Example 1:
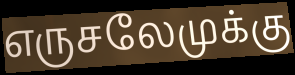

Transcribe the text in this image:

எருசலேமுக்கு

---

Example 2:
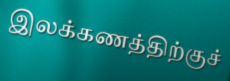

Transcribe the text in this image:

இலக்கணத்திற்குச்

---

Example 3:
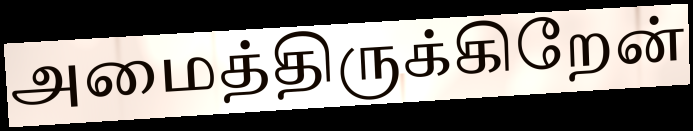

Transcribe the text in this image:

அமைத்திருக்கிறேன்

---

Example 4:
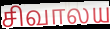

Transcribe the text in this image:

சிவாலய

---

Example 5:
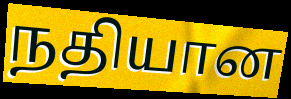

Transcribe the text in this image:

நதியான